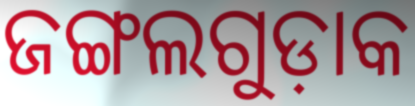
ଜଙ୍ଗଲଗୁଡ଼ାକ